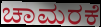
ಚಾಮರಕೆ